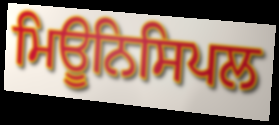
ਮਿਊਨਿਸਿਪਲ